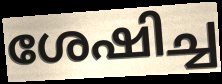
ശേഷിച്ച